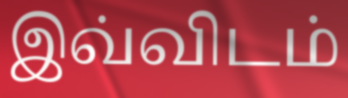
இவ்விடம்